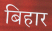
बिहार